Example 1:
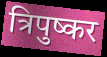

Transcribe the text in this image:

त्रिपुष्कर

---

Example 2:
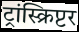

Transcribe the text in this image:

ट्रांस्क्रिप्टर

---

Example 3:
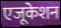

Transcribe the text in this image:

एजूकेशन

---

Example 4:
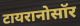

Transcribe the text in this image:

टायरानोसॉर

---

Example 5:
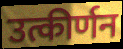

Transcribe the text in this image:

उत्कीर्णन